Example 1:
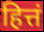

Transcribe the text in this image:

हित्तं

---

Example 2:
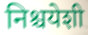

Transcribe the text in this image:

निश्चयेशी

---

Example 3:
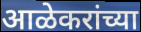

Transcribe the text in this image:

आळेकरांच्या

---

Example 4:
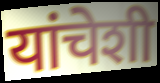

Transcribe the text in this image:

यांचेशी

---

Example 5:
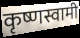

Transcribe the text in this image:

कृष्णस्वामी